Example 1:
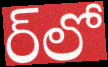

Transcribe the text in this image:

ర్‌లో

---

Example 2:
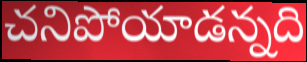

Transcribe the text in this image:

చనిపోయాడన్నది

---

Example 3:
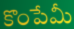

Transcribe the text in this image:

కొంపేమీ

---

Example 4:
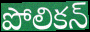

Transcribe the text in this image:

పోలికన్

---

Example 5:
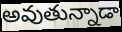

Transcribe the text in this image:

అవుతున్నాడా